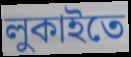
লুকাইতে